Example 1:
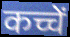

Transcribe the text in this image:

कच्चें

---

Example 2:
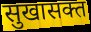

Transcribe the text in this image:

सुखासक्त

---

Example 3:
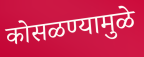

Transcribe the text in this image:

कोसळण्यामुळे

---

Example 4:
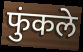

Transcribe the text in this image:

फुंकले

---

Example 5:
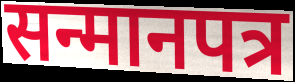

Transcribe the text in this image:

सन्मानपत्र